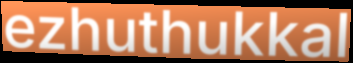
ezhuthukkal